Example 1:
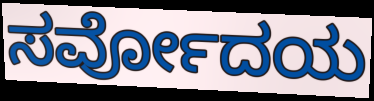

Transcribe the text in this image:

ಸರ್ವೋದಯ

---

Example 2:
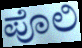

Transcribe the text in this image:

ಪೊಲಿ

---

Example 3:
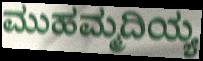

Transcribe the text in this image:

ಮುಹಮ್ಮದಿಯ್ಯ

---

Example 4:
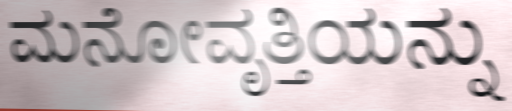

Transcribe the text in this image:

ಮನೋವೃತ್ತಿಯನ್ನು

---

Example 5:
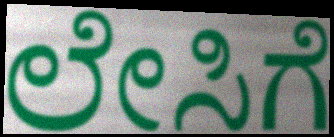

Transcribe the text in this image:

ಲೇಸಿಗೆ